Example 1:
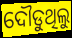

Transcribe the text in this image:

ଦୌଡୁଥିଲୁ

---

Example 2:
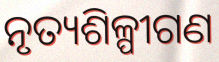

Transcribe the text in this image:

ନୃତ୍ୟଶିଳ୍ପୀଗଣ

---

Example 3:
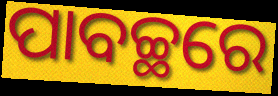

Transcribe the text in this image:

ପାବଚ୍ଛରେ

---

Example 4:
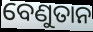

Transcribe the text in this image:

ବେଣୁତାନ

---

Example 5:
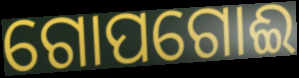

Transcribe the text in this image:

ଗୋପଗୋଈ